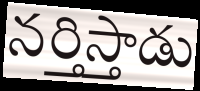
నర్తిస్తాడు